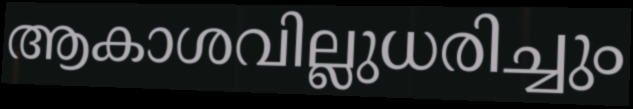
ആകാശവില്ലുധരിച്ചും